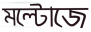
মল্টোজে